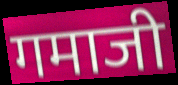
गमाजी